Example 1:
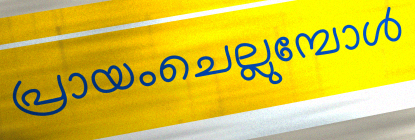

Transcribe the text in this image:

പ്രായംചെല്ലുമ്പോൾ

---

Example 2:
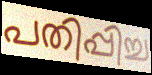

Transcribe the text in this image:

പതിപ്പിച്ച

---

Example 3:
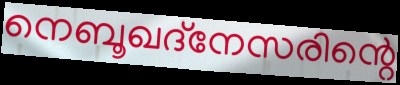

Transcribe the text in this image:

നെബൂഖദ്നേസരിന്റെ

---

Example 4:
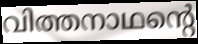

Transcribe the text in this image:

വിത്തനാഥന്റെ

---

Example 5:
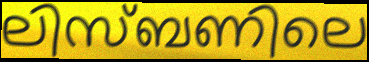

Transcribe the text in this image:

ലിസ്ബണിലെ